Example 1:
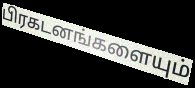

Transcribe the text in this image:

பிரகடனங்களையும்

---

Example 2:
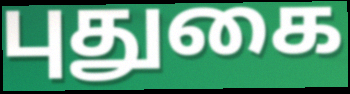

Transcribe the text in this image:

புதுகை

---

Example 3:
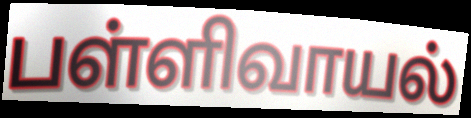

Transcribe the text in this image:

பள்ளிவாயல்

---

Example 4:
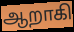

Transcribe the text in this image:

ஆறாகி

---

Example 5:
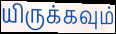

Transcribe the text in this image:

யிருக்கவும்